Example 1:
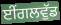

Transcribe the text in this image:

ਈਂਗਲਵੁੱਡ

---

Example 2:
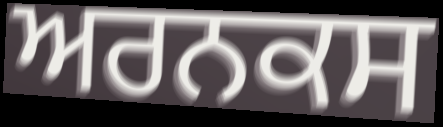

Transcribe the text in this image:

ਅਰਨਕਸ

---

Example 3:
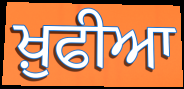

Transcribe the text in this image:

ਖ਼ੁਫੀਆ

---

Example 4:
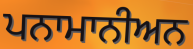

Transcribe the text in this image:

ਪਨਾਮਾਨੀਅਨ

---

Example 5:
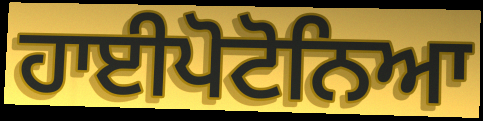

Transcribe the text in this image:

ਹਾਈਪੋਟੋਨਿਆ